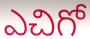
ఎచిగో